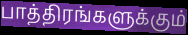
பாத்திரங்களுக்கும்